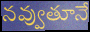
నవ్వుతూనే